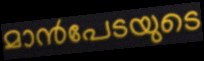
മാൻപേടയുടെ